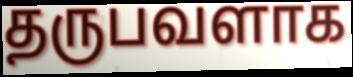
தருபவளாக